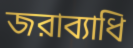
জরাব্যাধি